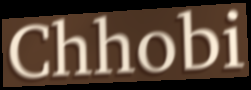
Chhobi